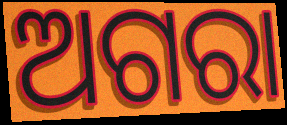
ଅଗରା